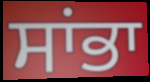
ਸਾਂਭਾ